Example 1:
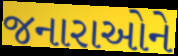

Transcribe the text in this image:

જનારાઓને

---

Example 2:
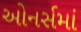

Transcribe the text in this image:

ઓનર્સમાં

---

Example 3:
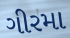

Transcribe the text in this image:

ગીરમા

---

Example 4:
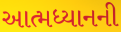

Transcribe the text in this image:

આત્મધ્યાનની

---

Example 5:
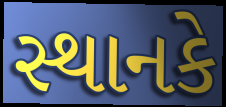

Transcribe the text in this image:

સ્થાનકે